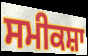
ਸਮੀਕਸ਼ਾ